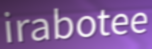
irabotee